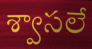
శ్వాసలే